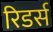
रिडर्स